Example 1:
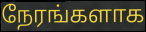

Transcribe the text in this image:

நேரங்களாக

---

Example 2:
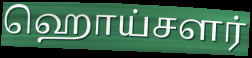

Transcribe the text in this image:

ஹொய்சளர்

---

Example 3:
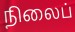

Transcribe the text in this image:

நிலைப்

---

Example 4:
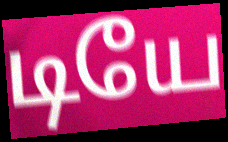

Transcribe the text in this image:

டியே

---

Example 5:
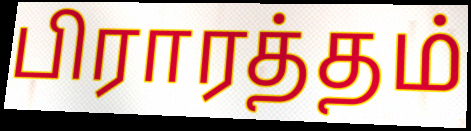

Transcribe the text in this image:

பிராரத்தம்